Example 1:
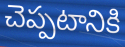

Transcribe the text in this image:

చెప్పటానికి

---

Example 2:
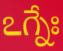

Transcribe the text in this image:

ఽగ్నేః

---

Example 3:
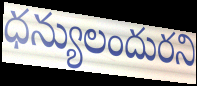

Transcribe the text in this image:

ధన్యులందురని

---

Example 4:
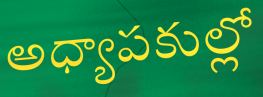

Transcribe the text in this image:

అధ్యాపకుల్లో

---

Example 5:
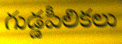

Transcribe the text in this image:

గుడ్డపీలికలు